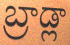
బ్రాడ్లా